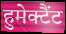
हुमेक्टैंट